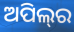
ଅପିଲ୍‌ର